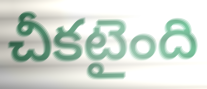
చీకటైంది